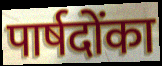
पार्षदोंका